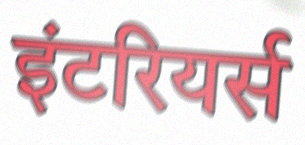
इंटरियर्स